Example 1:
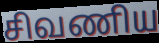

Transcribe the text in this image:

சிவணிய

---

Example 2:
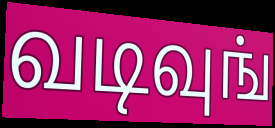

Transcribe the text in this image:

வடிவுங்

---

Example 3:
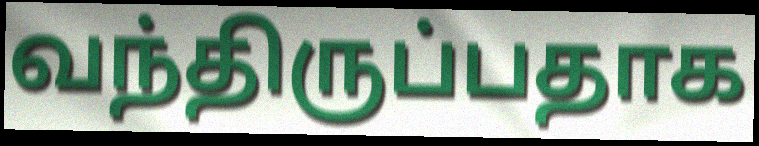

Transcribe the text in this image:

வந்திருப்பதாக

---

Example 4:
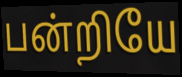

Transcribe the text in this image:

பன்றியே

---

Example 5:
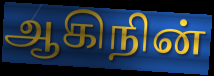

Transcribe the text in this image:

ஆகிநின்